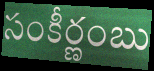
సంకీర్ణంబు